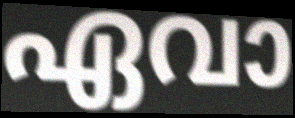
ഏവാ